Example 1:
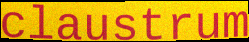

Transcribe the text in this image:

claustrum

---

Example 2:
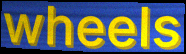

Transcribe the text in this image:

wheels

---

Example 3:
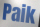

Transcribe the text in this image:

Paik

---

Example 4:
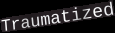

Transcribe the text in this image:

Traumatized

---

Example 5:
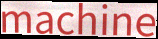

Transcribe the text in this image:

machine